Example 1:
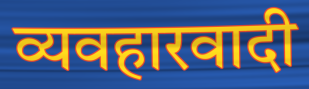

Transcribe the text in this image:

व्यवहारवादी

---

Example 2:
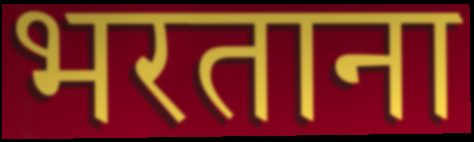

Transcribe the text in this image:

भरताना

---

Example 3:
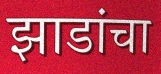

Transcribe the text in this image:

झाडांचा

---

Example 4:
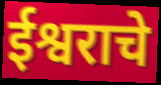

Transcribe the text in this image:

ईश्वराचे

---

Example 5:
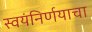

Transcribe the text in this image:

स्वयंनिर्णयाचा